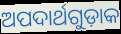
ଅପଦାର୍ଥଗୁଡ଼ାକ